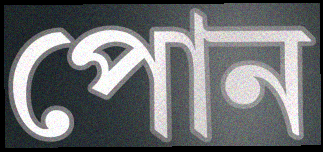
পোন